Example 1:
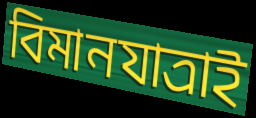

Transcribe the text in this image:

বিমানযাত্রাই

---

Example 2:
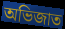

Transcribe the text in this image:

অভিজাত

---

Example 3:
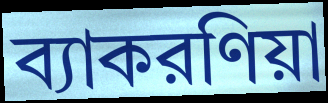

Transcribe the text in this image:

ব্যাকরণিয়া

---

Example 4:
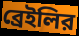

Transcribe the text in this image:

ব্রেইলির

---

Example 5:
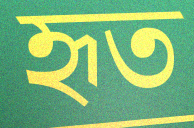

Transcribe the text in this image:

হৃত